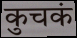
कुचकं